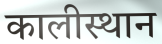
कालीस्थान